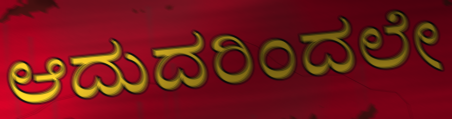
ಆದುದರಿಂದಲೇ